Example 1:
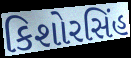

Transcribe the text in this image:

કિશોરસિંહ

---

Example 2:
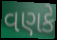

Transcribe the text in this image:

વણકે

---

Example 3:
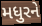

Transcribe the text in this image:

મધુરને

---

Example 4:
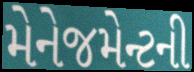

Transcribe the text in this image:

મેનેજમેન્ટની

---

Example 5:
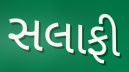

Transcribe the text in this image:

સલાફી